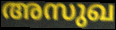
അസുഖ